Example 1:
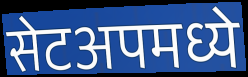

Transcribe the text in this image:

सेटअपमध्ये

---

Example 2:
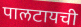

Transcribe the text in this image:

पालटायची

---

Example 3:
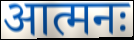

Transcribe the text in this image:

आत्मनः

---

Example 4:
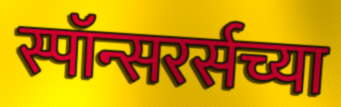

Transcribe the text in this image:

स्पॉन्सरर्सच्या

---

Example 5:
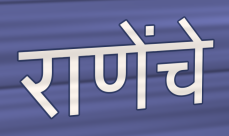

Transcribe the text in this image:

राणेंचे